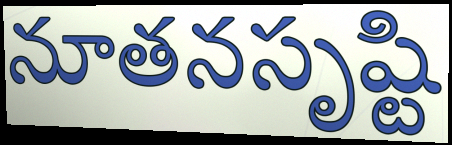
నూతనసృష్టి